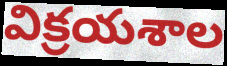
విక్రయశాల